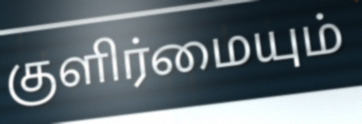
குளிர்மையும்